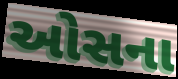
ઓસના